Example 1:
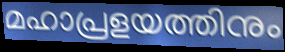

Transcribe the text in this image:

മഹാപ്രളയത്തിനും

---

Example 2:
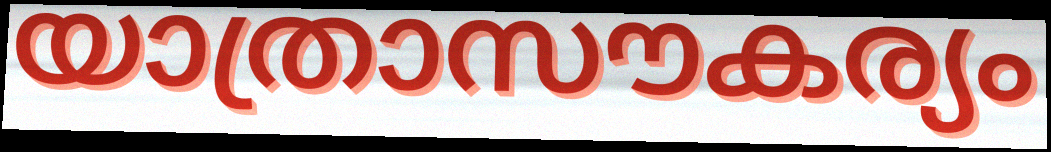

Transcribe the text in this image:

യാത്രാസൗകര്യം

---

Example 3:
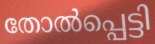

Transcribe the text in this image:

തോൽപ്പെട്ടി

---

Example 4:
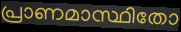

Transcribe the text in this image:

പ്രാണമാസ്ഥിതോ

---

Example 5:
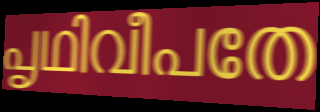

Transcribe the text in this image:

പൃഥിവീപതേ